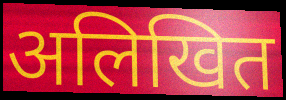
अलिखित